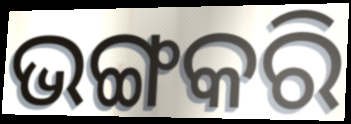
ଭଙ୍ଗକରି